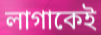
লাগাকেই